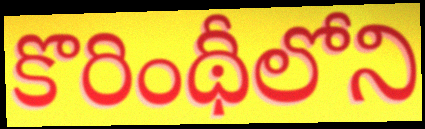
కొరింథీలోని